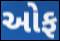
ઓફ